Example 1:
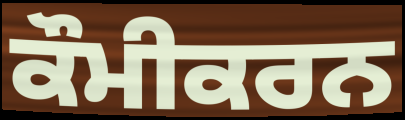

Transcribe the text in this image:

ਕੌਮੀਕਰਨ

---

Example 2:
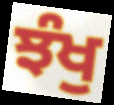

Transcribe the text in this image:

ਝੰਖੁ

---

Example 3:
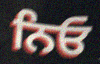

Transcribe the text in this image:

ਨਿਓ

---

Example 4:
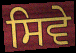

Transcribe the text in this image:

ਸਿਵੇ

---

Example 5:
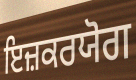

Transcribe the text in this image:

ਇਜ਼ਕਰਯੋਗ